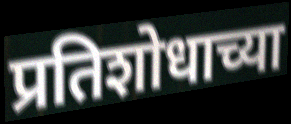
प्रतिशोधाच्या